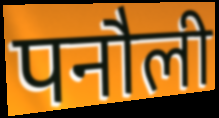
पनौली